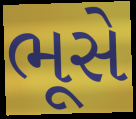
ભૂસે